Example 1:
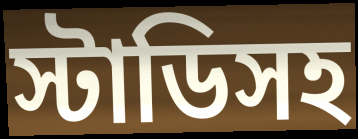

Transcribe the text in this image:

স্টাডিসহ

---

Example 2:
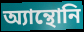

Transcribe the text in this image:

অ্যান্থোনি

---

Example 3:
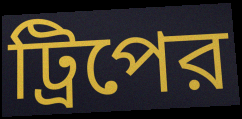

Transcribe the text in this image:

ট্রিপের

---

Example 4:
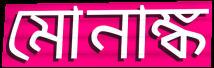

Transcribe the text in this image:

মোনাঙ্ক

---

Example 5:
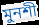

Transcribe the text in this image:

মুনশী